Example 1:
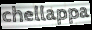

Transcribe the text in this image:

chellappa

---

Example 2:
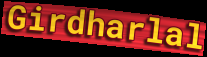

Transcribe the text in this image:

Girdharlal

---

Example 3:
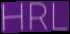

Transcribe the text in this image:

HRL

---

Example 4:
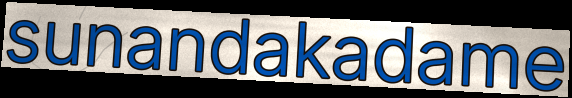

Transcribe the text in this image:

sunandakadame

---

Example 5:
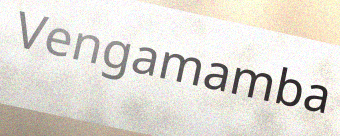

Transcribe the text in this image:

Vengamamba